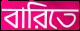
বারিতে